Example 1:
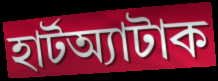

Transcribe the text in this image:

হার্টঅ্যাটাক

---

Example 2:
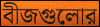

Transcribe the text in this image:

বীজগুলোর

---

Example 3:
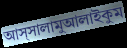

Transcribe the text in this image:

আস্সালামুআলাইকুম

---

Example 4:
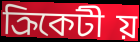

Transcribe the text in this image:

ক্রিকেটীয়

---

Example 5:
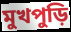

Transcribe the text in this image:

মুখপুড়ি